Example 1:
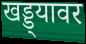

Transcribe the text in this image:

खड्ड्यावर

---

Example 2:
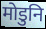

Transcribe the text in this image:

मोडुनि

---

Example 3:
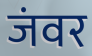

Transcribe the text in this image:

जंवर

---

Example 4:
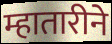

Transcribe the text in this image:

म्हातारीने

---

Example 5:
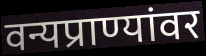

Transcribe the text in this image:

वन्यप्राण्यांवर